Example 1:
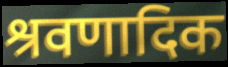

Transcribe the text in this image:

श्रवणादिक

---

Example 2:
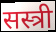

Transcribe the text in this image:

सस्त्री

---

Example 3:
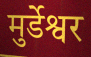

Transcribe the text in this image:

मुर्डेश्वर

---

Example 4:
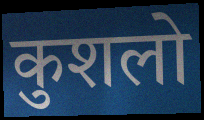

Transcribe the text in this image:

कुशलो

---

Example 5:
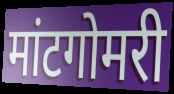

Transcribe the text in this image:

मांटगोमरी